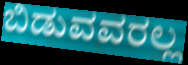
ಬಿಡುವವರಲ್ಲ